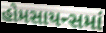
હોમસાયન્સમાં